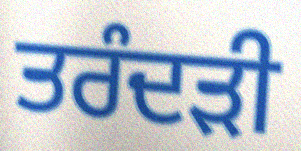
ਤਰੰਦੜੀ